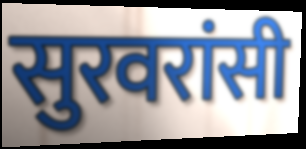
सुरवरांसी